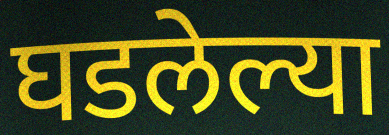
घडलेल्या